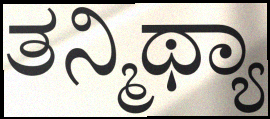
ತನ್ಮಿಥ್ಯಾ